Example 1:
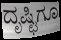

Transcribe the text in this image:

ದೃಷ್ಟಿಗೂ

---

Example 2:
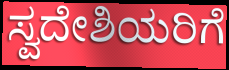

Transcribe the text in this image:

ಸ್ವದೇಶಿಯರಿಗೆ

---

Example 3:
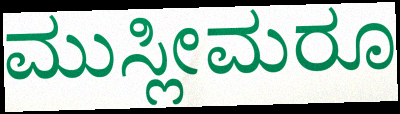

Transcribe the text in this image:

ಮುಸ್ಲೀಮರೂ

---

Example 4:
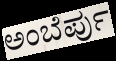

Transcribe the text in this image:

ಅಂಬೆರ್ಪು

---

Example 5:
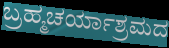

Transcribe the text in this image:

ಬ್ರಹ್ಮಚರ್ಯಾಶ್ರಮದ